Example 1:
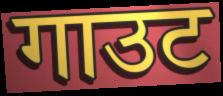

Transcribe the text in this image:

गाउट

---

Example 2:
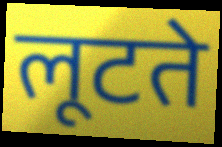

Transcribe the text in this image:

लूटते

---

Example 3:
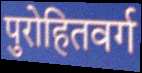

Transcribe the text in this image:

पुरोहितवर्ग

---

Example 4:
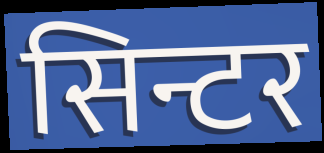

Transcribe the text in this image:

सिन्टर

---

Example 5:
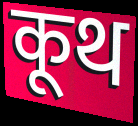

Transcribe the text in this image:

कूथ